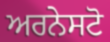
ਅਰਨੇਸਟੋ